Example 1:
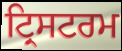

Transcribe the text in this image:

ਟ੍ਰਿਸਟਰਮ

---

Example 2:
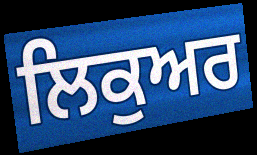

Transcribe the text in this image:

ਲਿਕੁਅਰ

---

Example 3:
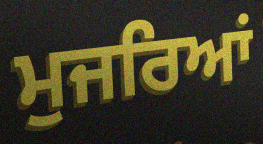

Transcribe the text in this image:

ਮੁਜਰਿਆਂ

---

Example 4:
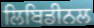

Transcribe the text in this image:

ਲਿਬਿਡੀਨਲ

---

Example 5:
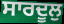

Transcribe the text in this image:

ਸਾਰਦੂਲੁ